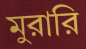
মুরারি